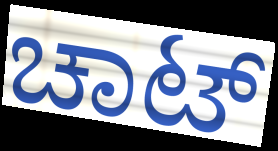
ಚಾಟ್